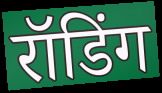
रॉडिंग